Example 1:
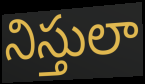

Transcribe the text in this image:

నిస్తులా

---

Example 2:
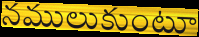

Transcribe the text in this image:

నములుకుంటూ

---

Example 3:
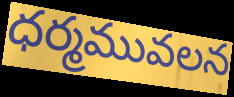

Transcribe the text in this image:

ధర్మమువలన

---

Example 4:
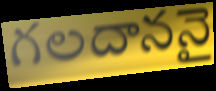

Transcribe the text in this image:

గలదాననై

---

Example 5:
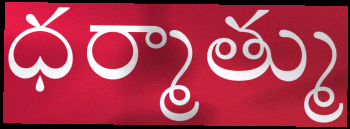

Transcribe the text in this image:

ధర్మాత్ము